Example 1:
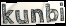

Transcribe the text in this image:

kunbi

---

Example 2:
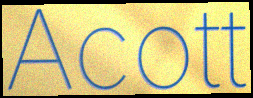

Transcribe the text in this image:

Acott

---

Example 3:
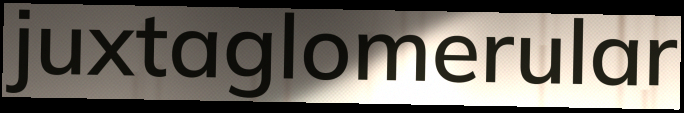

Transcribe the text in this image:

juxtaglomerular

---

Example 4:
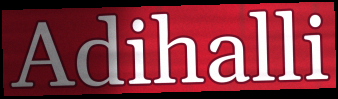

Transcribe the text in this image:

Adihalli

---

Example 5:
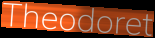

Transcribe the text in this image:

Theodoret